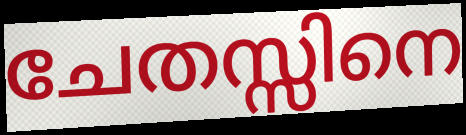
ചേതസ്സിനെ